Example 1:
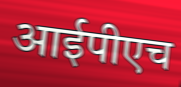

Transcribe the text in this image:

आईपीएच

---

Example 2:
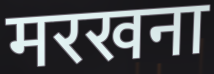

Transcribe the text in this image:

मरखना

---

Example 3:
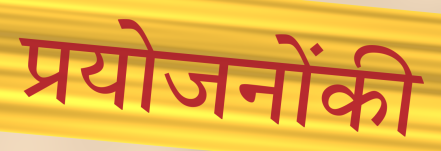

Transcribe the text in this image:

प्रयोजनोंकी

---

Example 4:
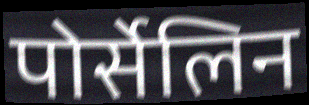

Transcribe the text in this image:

पोर्सेलिन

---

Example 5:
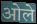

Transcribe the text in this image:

ओले